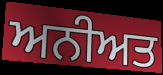
ਅਨੀਅਤ